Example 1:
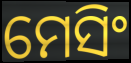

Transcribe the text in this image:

ମେସିଂ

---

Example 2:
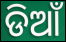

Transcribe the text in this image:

ଡିଆଁ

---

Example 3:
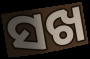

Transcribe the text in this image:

ସଖ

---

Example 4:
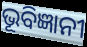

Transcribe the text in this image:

ଭୂବିଜ୍ଞାନୀ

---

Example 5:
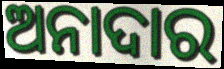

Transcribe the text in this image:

ଅନାଦାର